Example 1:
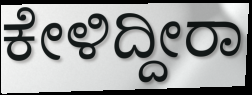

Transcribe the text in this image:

ಕೇಳಿದ್ದೀರಾ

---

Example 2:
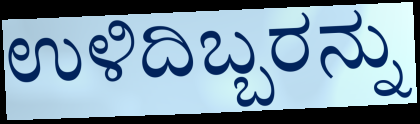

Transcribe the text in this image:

ಉಳಿದಿಬ್ಬರನ್ನು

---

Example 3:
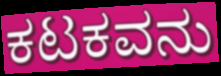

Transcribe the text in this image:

ಕಟಕವನು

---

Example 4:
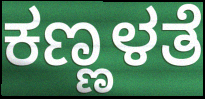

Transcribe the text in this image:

ಕಣ್ಣಳತೆ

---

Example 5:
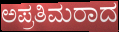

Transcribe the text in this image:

ಅಪ್ರತಿಮರಾದ